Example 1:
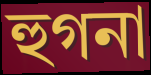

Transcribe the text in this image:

হুগনা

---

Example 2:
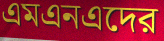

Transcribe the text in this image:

এমএনএদের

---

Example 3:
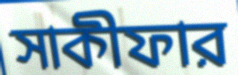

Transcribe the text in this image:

সাকীফার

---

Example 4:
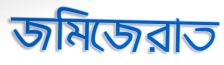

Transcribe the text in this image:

জমিজেরাত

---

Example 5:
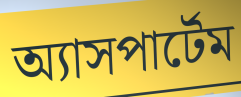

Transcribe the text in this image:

অ্যাসপার্টেম